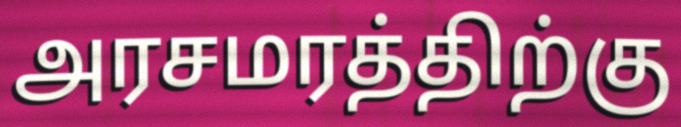
அரசமரத்திற்கு